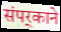
संपर्काने